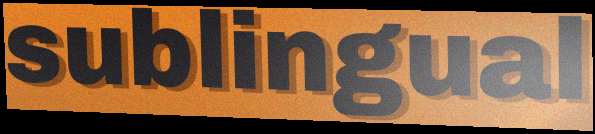
sublingual